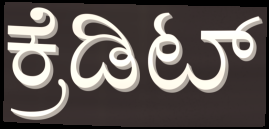
ಕ್ರೆಡಿಟ್